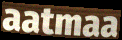
aatmaa